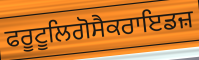
ਫਰੂਟੂਲਿਗੋਸੈਕਰਾਇਡਜ਼